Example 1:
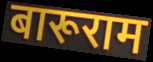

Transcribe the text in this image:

बारूराम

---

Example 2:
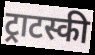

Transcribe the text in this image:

ट्राटस्की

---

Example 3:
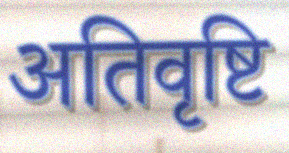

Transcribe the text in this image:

अतिवृष्टि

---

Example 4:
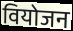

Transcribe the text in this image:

वियोजन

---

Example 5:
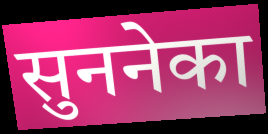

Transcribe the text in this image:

सुननेका